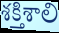
శక్తిశాలి